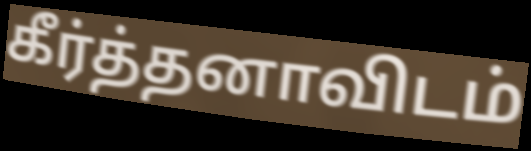
கீர்த்தனாவிடம்